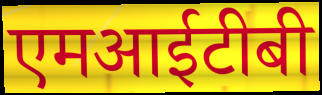
एमआईटीबी